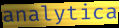
analytica